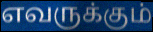
எவருக்கும்